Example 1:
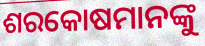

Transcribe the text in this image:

ଶରକୋଷମାନଙ୍କୁ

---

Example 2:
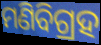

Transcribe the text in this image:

ମଣିବିଗ୍ରହ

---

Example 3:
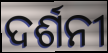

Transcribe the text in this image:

ଦର୍ଶନୀ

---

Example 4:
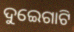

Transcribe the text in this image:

ଦୁଇେଗାଟି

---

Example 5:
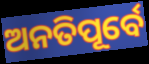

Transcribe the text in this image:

ଅନତିପୂର୍ବେ